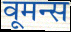
वूमन्स